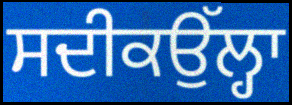
ਸਦੀਕਉੱਲ੍ਹਾ